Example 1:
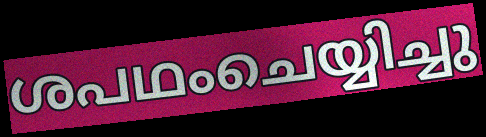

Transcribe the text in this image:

ശപഥംചെയ്യിച്ചു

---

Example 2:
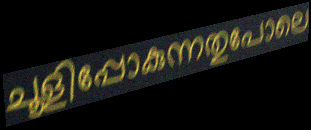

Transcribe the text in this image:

ചൂളിപ്പോകുന്നതുപോലെ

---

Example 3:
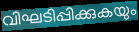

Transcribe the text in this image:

വിഘടിപ്പിക്കുകയും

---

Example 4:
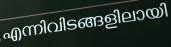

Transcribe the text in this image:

എന്നിവിടങ്ങളിലായി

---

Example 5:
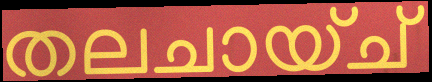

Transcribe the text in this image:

തലചായ്ച്